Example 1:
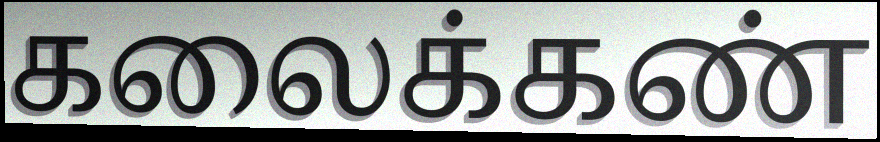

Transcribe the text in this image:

கலைக்கண்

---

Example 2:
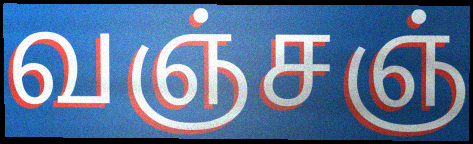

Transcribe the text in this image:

வஞ்சஞ்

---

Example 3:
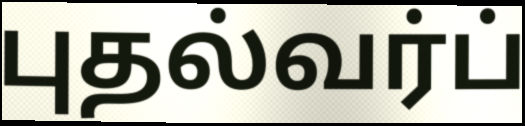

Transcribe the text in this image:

புதல்வர்ப்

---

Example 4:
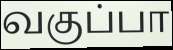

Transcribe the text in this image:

வகுப்பா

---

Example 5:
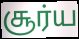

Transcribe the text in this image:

சூர்ய